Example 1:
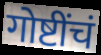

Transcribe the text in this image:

गोष्टींचं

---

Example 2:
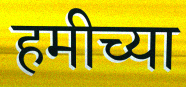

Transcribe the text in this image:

हमीच्या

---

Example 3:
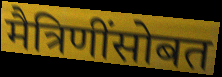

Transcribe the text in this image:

मैत्रिणींसोबत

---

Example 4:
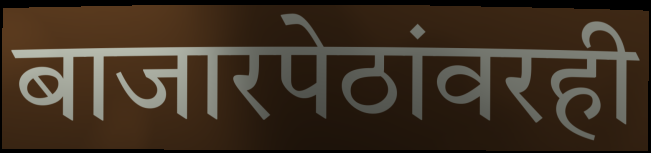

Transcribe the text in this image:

बाजारपेठांवरही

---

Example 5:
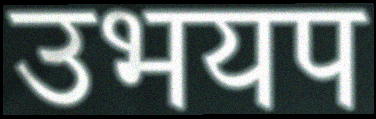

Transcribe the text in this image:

उभयप